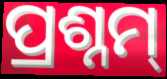
ପ୍ରଶ୍ନମ୍